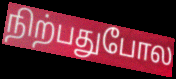
நிற்பதுபோல